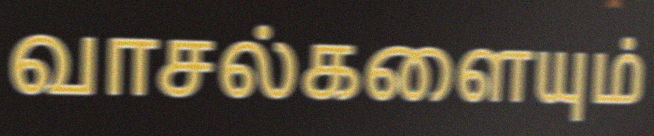
வாசல்களையும்